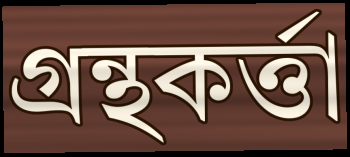
গ্রন্থকর্ত্তা